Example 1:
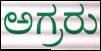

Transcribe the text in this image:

ಅಗ್ರರು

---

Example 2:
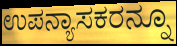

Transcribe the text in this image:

ಉಪನ್ಯಾಸಕರನ್ನೂ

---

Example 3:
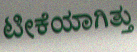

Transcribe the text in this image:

ಟೀಕೆಯಾಗಿತ್ತು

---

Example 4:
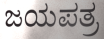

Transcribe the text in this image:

ಜಯಪತ್ರ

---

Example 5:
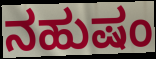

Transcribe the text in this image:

ನಹುಷಂ